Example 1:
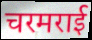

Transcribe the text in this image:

चरमराई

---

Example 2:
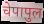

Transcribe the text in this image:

चेपापुल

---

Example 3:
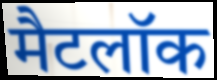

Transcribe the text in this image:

मैटलॉक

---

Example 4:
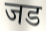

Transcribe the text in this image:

जड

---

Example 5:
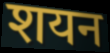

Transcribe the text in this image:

शयन